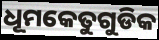
ଧୂମକେତୁଗୁଡିକ